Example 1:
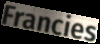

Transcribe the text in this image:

Francies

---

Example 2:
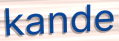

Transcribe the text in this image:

kande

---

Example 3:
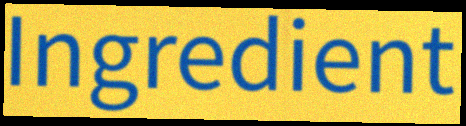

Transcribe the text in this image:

Ingredient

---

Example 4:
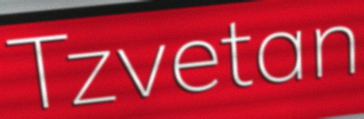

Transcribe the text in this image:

Tzvetan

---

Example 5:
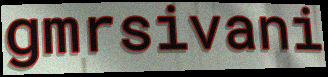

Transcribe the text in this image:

gmrsivani